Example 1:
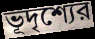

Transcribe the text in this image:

ভূদৃশ্যের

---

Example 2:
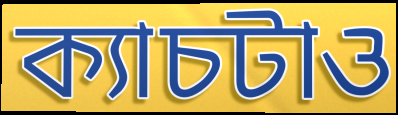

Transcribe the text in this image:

ক্যাচটাও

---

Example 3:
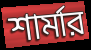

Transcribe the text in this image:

শার্মার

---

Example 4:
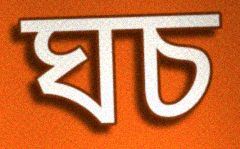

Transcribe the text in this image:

ঘচ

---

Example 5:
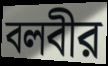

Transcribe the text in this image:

বলবীর